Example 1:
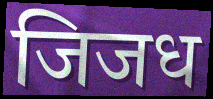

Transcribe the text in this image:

जिजध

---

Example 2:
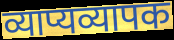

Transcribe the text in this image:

व्याप्यव्यापक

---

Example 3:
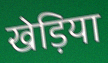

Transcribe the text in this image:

खेड़िया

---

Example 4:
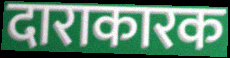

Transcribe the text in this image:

दाराकारक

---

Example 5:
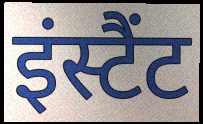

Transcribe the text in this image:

इंस्टैंट